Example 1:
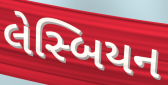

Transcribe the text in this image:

લેસ્બિયન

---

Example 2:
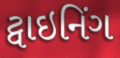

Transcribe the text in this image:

ટ્વાઇનિંગ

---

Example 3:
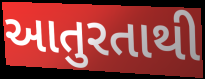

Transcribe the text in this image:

આતુરતાથી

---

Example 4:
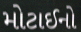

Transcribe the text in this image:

મોટાઈનો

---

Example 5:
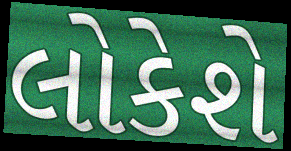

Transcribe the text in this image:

લોકેશે